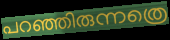
പറഞ്ഞിരുന്നത്രെ